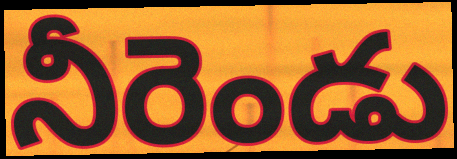
నీరెండు